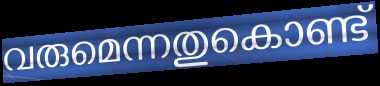
വരുമെന്നതുകൊണ്ട്